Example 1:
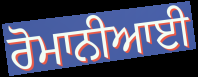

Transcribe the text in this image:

ਰੋਮਾਨੀਆਈ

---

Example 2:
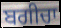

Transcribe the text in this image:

ਬਗੀਚਾ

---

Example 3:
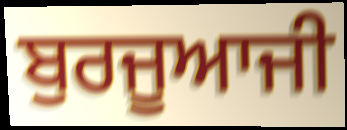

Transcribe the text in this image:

ਬੁਰਜੂਆਜੀ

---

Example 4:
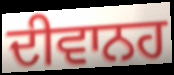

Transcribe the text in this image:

ਦੀਵਾਨਹ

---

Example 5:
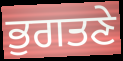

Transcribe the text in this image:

ਭੁਗਤਣੇ